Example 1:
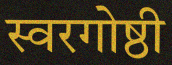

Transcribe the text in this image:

स्वरगोष्ठी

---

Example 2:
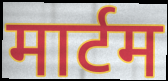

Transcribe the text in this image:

मार्टम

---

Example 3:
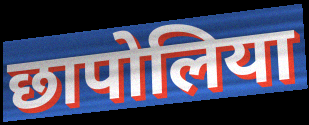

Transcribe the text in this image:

छापोलिया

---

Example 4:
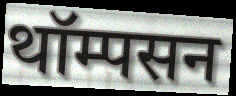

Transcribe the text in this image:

थॉम्पसन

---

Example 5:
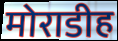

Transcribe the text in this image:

मोराडीह